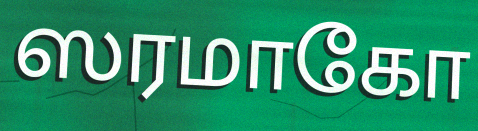
ஸரமாகோ